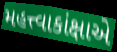
મહત્ત્વાકાંક્ષાએ